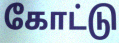
கோட்டு